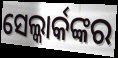
ସେଲ୍କାର୍କଙ୍କର